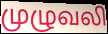
முழுவலி